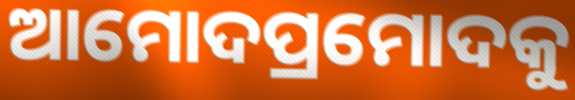
ଆମୋଦପ୍ରମୋଦକୁ